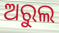
ଅରୁଲ